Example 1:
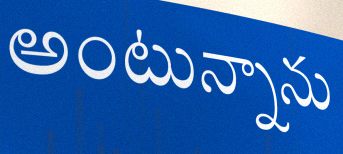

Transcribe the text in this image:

అంటున్నాను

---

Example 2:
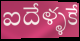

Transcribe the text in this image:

ఐదేళ్ళకే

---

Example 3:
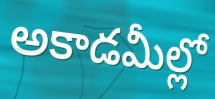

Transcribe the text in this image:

అకాడమీల్లో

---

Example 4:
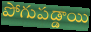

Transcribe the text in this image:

పోగుపడ్డాయి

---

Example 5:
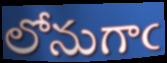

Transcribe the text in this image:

లోనుగాఁ